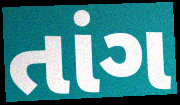
તાંગ